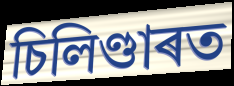
চিলিণ্ডাৰত